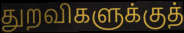
துறவிகளுக்குத்